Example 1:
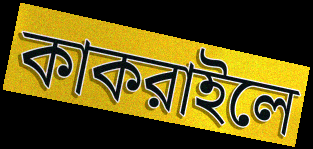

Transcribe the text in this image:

কাকরাইলে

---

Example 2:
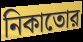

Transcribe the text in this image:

নিকাতোর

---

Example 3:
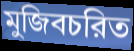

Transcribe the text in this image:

মুজিবচরিত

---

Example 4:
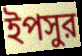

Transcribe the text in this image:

ইপসুর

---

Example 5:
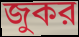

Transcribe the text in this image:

জুকর